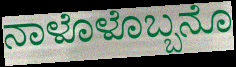
ನಾಳೊಳೊಬ್ಬನೊ